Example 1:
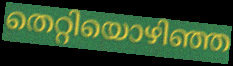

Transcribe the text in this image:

തെറ്റിയൊഴിഞ്ഞ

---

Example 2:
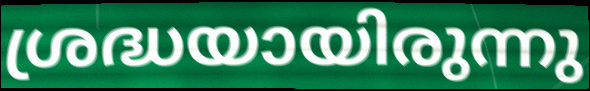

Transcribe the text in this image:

ശ്രദ്ധയായിരുന്നു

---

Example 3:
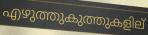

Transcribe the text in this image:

എഴുത്തുകുത്തുകളില്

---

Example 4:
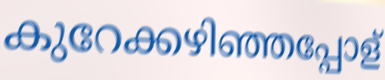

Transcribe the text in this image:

കുറേക്കഴിഞ്ഞപ്പോള്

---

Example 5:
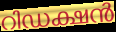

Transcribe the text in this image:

റിഡക്ഷൻ